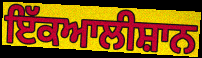
ਇੱਕਆਲੀਸ਼ਾਨ